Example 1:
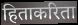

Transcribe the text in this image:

हिताकरिता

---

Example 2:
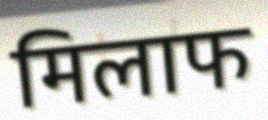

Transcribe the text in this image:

मिलाफ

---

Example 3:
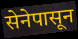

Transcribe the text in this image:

सेनेपासून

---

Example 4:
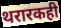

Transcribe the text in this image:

थरारकही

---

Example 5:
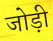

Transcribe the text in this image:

जोड़ी